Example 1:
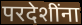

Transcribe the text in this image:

परदेशींना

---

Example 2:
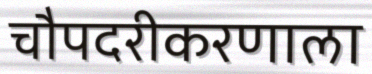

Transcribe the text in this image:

चौपदरीकरणाला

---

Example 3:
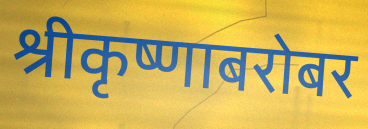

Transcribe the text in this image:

श्रीकृष्णाबरोबर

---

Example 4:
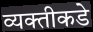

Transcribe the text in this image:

व्यक्तीकडे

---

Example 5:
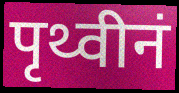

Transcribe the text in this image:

पृथ्वीनं